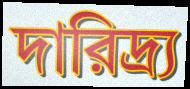
দারিদ্র্য